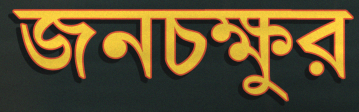
জনচক্ষুর